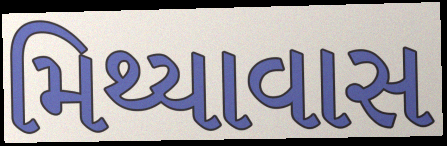
મિથ્યાવાસ